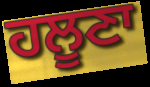
ਹਲੂਣਾ